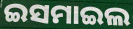
ଇସମାଇଲ